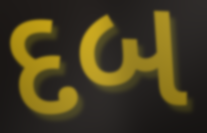
દબ